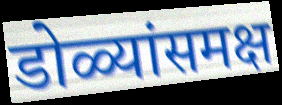
डोळ्यांसमक्ष